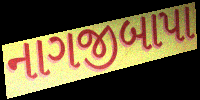
નાગજીબાપા